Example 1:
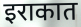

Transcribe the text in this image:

इराकात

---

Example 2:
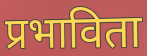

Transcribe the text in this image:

प्रभाविता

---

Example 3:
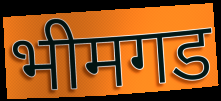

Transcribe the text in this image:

भीमगड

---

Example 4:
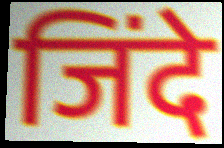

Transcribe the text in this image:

जिंदे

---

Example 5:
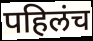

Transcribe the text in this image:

पहिलंच